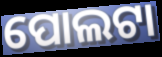
ପୋଲଟା